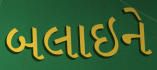
બલાઇને